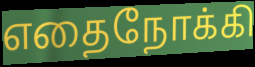
எதைநோக்கி